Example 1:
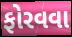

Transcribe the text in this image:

ફોરવવા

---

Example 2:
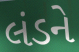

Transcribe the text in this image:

લંડને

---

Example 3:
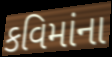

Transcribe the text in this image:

કવિમાંના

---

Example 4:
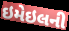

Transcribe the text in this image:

ઇમેઇલની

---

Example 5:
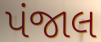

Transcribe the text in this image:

પંજાલ